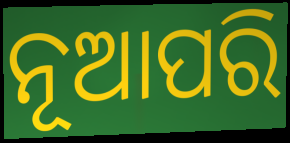
ନୂଆପରି